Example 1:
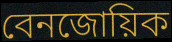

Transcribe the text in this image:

বেনজোয়িক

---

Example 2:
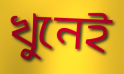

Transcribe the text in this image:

খুনেই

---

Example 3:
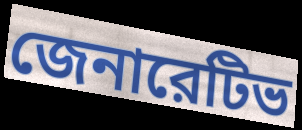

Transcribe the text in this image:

জেনারেটিভ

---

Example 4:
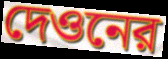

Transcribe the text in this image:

দেওনের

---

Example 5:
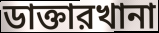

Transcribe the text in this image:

ডাক্তারখানা